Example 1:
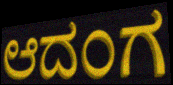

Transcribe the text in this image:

ಆದಂಗ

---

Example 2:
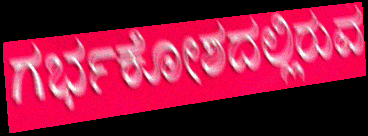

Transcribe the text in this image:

ಗರ್ಭಕೋಶದಲ್ಲಿರುವ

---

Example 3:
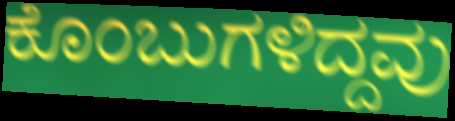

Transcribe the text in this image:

ಕೊಂಬುಗಳಿದ್ದವು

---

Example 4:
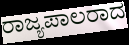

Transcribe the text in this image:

ರಾಜ್ಯಪಾಲರಾದ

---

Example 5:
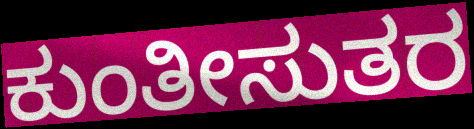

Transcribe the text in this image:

ಕುಂತೀಸುತರ